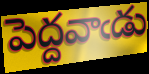
పెద్దవాఁడు